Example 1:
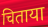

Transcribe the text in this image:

चिताया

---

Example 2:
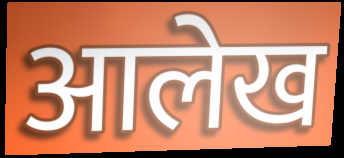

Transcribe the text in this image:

आलेख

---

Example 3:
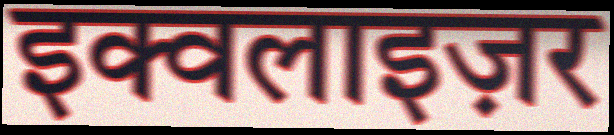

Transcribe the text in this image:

इक्वलाइज़र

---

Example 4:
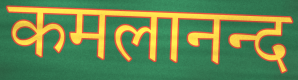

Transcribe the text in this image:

कमलानन्द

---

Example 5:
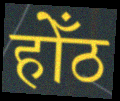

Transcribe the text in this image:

होँठ